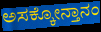
ಅಸಕ್ಕೋನ್ತಾನಂ